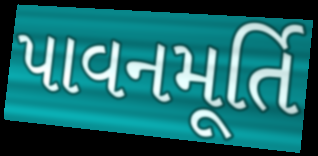
પાવનમૂર્તિ